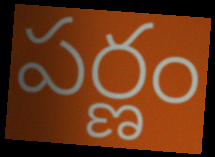
పర్ణం